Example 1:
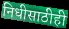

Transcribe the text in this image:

निधीसाठीही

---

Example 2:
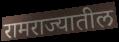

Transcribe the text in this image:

रामराज्यातील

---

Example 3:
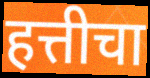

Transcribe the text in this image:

हत्तीचा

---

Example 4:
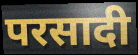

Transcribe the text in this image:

परसादी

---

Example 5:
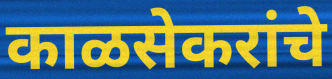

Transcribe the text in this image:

काळसेकरांचे